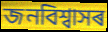
জনবিশ্বাসৰ